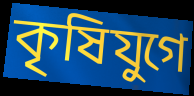
কৃষিযুগে